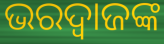
ଭରଦ୍ବାଜଙ୍କ